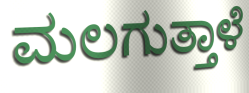
ಮಲಗುತ್ತಾಳೆ